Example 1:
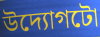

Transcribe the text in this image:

উদ্যোগটো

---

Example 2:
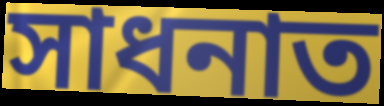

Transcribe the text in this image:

সাধনাত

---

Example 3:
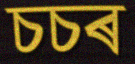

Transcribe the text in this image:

চচৰ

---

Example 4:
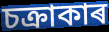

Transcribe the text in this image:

চক্ৰাকাৰ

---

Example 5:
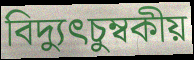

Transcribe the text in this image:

বিদ্যুৎচুম্বকীয়